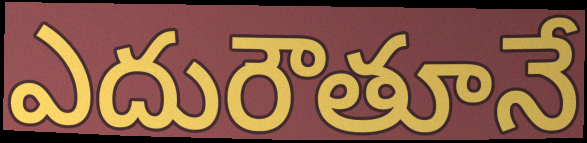
ఎదురౌతూనే